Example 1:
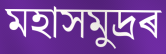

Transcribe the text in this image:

মহাসমুদ্ৰৰ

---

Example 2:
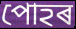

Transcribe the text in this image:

পোহৰ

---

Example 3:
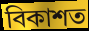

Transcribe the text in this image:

বিকাশত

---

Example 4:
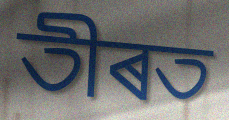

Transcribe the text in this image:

তীৰত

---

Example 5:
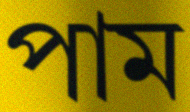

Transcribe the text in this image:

পাম